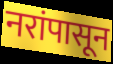
नरांपासून